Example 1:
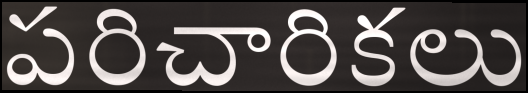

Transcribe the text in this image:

పరిచారికలు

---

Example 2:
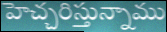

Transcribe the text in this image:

హెచ్చరిస్తున్నాము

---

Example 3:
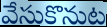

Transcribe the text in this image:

వేసుకొనుట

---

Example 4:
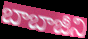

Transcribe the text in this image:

బాబాజీని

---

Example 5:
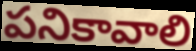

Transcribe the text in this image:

పనికావాలి